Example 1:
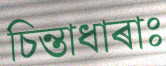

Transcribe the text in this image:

চিন্তাধাৰাঃ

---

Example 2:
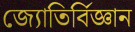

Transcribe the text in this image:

জ্যোতিৰ্বিজ্ঞান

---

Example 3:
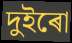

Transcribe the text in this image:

দুইৰো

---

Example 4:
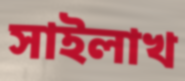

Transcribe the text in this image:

সাইলাখ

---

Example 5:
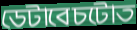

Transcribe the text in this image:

ডেটাবেচটোত